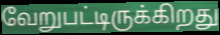
வேறுபட்டிருக்கிறது